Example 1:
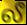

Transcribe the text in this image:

லீ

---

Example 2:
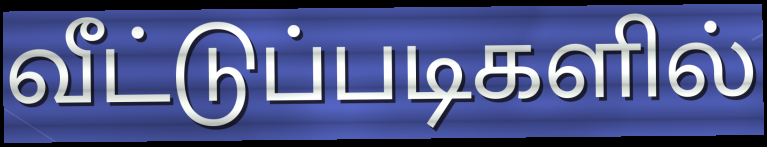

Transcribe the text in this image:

வீட்டுப்படிகளில்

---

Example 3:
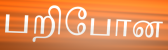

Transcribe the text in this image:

பறிபோன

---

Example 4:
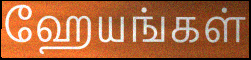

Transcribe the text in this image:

ஹேயங்கள்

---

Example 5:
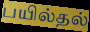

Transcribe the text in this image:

பயில்தல்